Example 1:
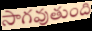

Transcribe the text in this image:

సాగవుతుంది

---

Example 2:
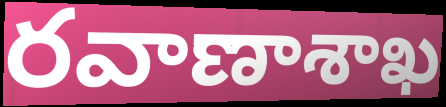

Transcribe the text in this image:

రవాణాశాఖ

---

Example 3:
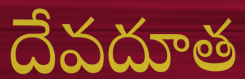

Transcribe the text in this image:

దేవదూత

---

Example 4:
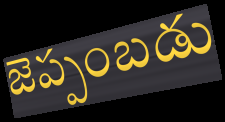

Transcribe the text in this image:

జెప్పంబడు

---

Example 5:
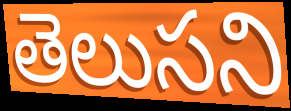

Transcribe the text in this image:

తెలుసని